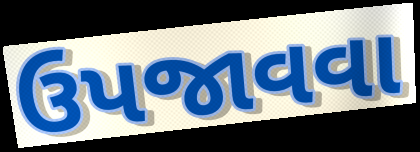
ઉપજાવવા